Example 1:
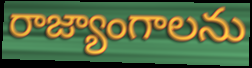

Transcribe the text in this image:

రాజ్యాంగాలను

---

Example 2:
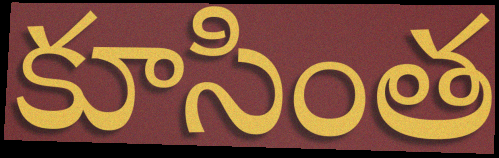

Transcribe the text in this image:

కూసింత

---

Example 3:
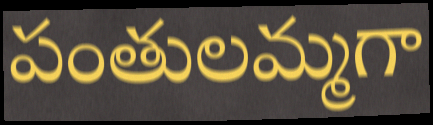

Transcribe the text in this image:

పంతులమ్మగా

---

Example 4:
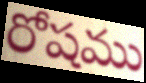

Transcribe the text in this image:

రోషము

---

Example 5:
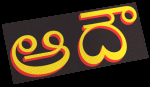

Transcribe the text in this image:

ఆదౌ